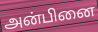
அன்பினை